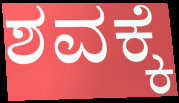
ಶವಕ್ಕೆ